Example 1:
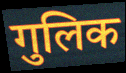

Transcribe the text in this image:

गुलिक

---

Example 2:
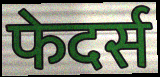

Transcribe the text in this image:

फेदर्स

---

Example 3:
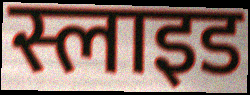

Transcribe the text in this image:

स्लाइड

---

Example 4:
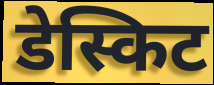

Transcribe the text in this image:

डेस्किट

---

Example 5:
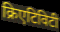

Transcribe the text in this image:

क्रिएटिविटी